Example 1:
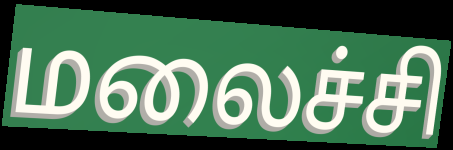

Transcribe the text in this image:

மலைச்சி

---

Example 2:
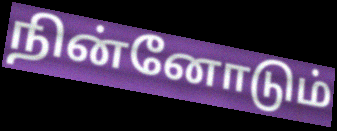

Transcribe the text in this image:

நின்னோடும்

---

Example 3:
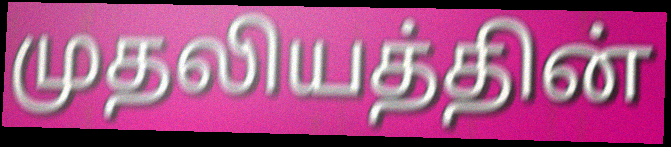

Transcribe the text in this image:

முதலியத்தின்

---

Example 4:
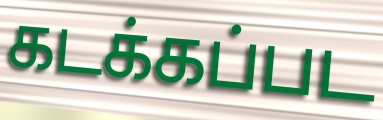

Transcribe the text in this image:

கடக்கப்பட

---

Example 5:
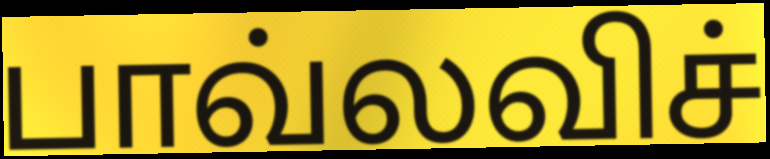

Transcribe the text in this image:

பாவ்லவிச்